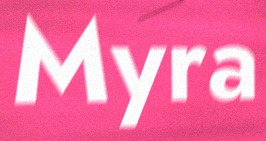
Myra